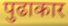
पुढाकार